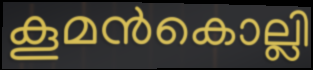
കൂമൻകൊല്ലി